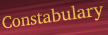
Constabulary